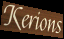
Kerions